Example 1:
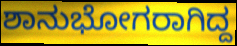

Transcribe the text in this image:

ಶಾನುಭೋಗರಾಗಿದ್ದ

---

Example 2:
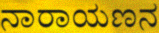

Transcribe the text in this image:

ನಾರಾಯಣನ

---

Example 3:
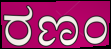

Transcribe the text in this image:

ರಣಂ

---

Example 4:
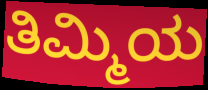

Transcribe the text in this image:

ತಿಮ್ಮಿಯ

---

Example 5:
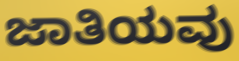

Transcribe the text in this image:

ಜಾತಿಯವು